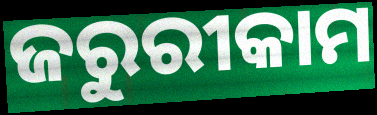
ଜରୁରୀକାମ